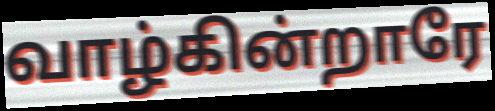
வாழ்கின்றாரே